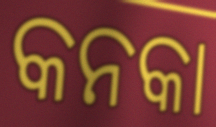
କନକା